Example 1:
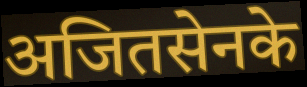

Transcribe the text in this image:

अजितसेनके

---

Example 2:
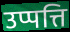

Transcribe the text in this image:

उप्पत्ति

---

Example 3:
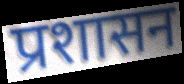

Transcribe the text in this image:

प्रशासन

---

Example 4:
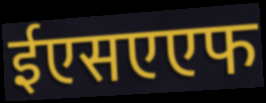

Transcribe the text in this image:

ईएसएएफ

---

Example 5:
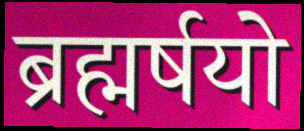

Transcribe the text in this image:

ब्रह्मर्षयो